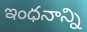
ఇంధనాన్ని